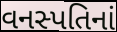
વનસ્પતિનાં